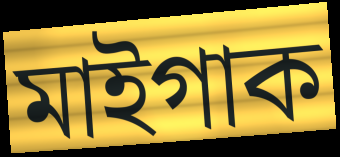
মাইগাক